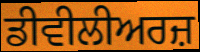
ਡੀਵੀਲੀਅਰਜ਼